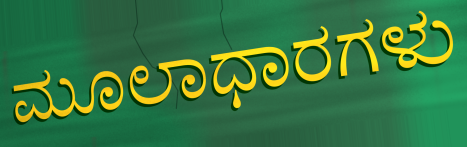
ಮೂಲಾಧಾರಗಳು